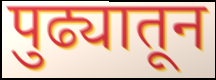
पुढ्यातून